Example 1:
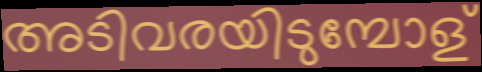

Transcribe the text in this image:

അടിവരയിടുമ്പോള്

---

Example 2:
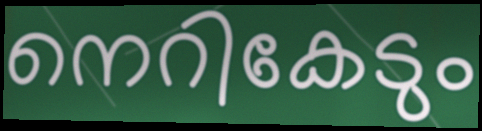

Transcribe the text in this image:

നെറികേടും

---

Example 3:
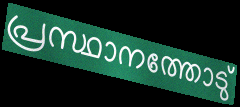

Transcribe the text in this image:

പ്രസ്ഥാനത്തോടു്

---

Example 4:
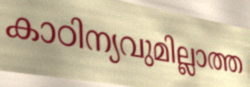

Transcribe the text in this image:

കാഠിന്യവുമില്ലാത്ത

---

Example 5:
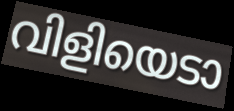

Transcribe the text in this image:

വിളിയെടാ